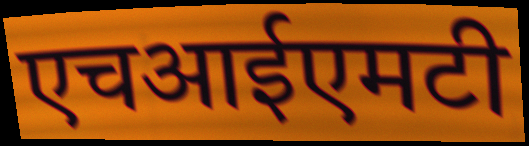
एचआईएमटी